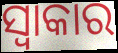
ସ୍ୱାକାର